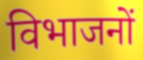
विभाजनों